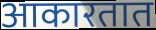
आकारतात